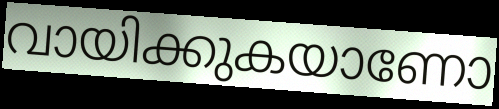
വായിക്കുകയാണോ